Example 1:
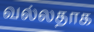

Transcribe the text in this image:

வல்லதாக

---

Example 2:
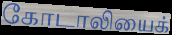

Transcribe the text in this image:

கோடாலியைக்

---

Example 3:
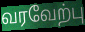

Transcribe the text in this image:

வரவேற்பு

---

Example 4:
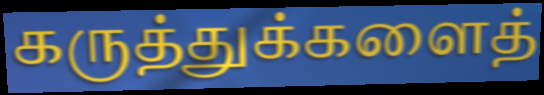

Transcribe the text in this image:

கருத்துக்களைத்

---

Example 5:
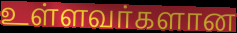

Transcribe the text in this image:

உள்ளவர்களான